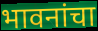
भावनांचा